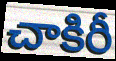
చాకిరీ